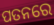
ପତନରେ